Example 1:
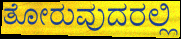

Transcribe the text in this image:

ತೋರುವುದರಲ್ಲಿ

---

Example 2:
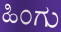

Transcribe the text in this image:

ಹಿಂಗು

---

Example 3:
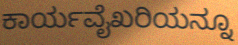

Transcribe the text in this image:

ಕಾರ್ಯವೈಖರಿಯನ್ನೂ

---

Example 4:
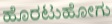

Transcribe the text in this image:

ಹೊರಟುಹೋಗು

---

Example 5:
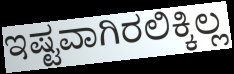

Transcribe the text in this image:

ಇಷ್ಟವಾಗಿರಲಿಕ್ಕಿಲ್ಲ